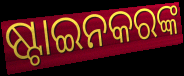
ଷ୍ଟାଇନକରଙ୍କ